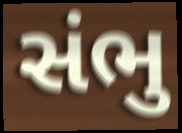
સંભુ